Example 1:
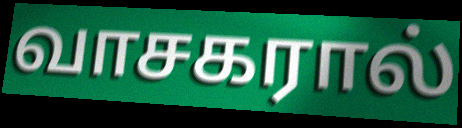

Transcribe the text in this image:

வாசகரால்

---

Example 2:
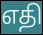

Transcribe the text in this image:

எதி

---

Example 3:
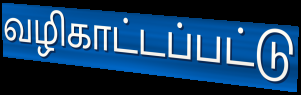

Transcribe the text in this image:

வழிகாட்டப்பட்டு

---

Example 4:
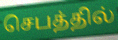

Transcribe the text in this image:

செபத்தில்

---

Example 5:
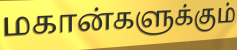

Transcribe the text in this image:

மகான்களுக்கும்